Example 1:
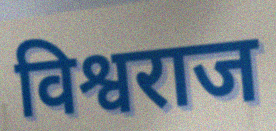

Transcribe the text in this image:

विश्वराज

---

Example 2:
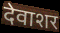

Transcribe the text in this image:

देवाशर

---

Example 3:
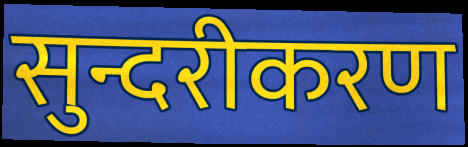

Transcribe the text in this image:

सुन्दरीकरण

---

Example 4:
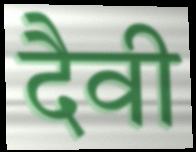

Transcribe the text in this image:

दैवी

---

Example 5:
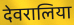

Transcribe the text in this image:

देवरालिया